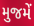
મુજમેં